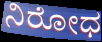
ನಿರೋಧ